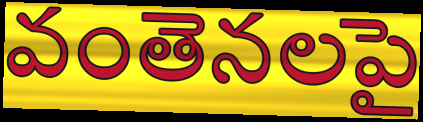
వంతెనలపై